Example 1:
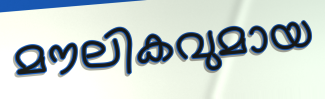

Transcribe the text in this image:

മൗലികവുമായ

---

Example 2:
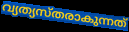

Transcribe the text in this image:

വ്യത്യസ്തരാകുന്നത്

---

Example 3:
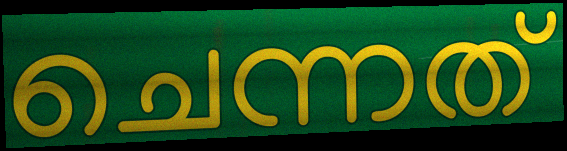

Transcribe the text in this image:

ചെന്നത്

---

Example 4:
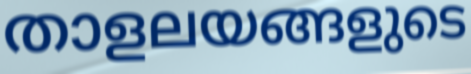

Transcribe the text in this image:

താളലയങ്ങളുടെ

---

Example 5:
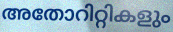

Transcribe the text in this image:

അതോറിറ്റികളും